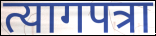
त्यागपत्रा